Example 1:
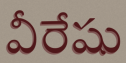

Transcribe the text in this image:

వీరేషు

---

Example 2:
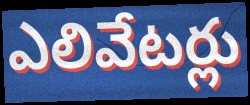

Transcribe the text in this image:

ఎలివేటర్లు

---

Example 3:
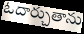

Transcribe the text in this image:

ఓదార్చుతాను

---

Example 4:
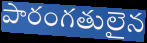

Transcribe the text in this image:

పారంగతులైన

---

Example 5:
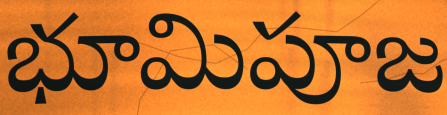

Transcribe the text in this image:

భూమిపూజ